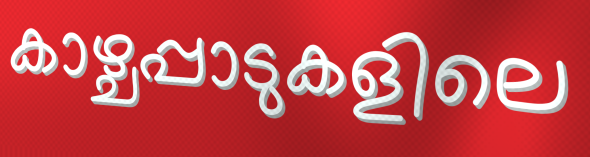
കാഴ്ചപ്പാടുകളിലെ